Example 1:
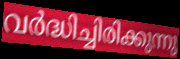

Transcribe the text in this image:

വർദ്ധിച്ചിരിക്കുന്നു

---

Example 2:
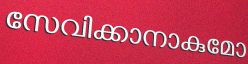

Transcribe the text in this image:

സേവിക്കാനാകുമോ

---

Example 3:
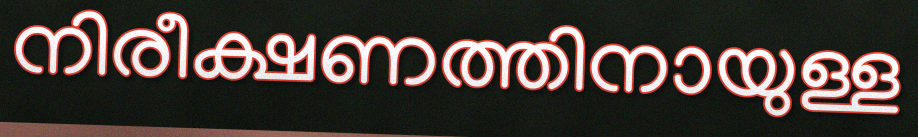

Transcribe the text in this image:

നിരീക്ഷണത്തിനായുള്ള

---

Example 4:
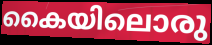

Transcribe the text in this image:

കൈയിലൊരു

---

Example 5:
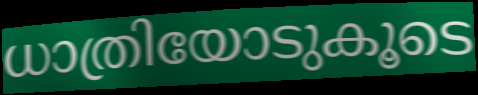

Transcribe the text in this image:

ധാത്രിയോടുകൂടെ